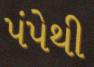
પંપેથી